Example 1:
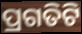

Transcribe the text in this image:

ପ୍ରଗତିଟି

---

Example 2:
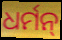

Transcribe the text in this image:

ଧର୍ମନ୍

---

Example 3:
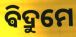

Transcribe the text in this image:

ଵିଦ୍ରୁମେ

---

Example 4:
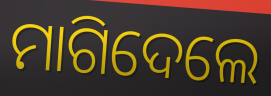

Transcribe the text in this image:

ମାଗିଦେଲେ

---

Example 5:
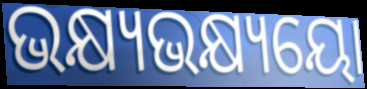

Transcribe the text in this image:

ଭକ୍ଷ୍ୟଭକ୍ଷ୍ୟୟୋ